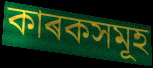
কাৰকসমূহ